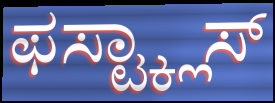
ಫಸ್ಟ್ಕ್ಲಾಸ್